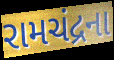
રામચંદ્રના